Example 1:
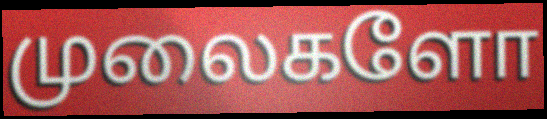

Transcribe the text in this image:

முலைகளோ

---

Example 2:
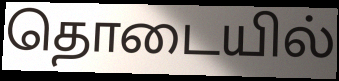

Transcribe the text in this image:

தொடையில்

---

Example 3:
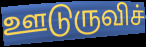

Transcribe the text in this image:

ஊடுருவிச்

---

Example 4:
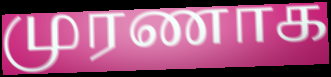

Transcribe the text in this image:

முரணாக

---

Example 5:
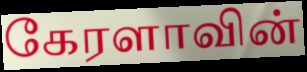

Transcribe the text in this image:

கேரளாவின்